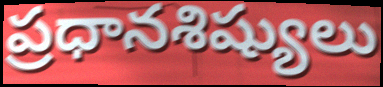
ప్రధానశిష్యులు